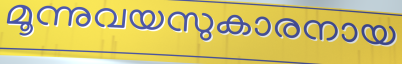
മൂന്നുവയസുകാരനായ